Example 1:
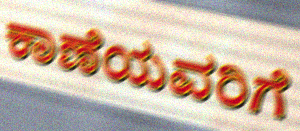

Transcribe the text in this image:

ಕಾಣೆಯವರಿಗೆ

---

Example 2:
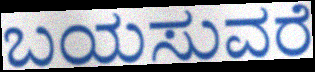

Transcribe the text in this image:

ಬಯಸುವರೆ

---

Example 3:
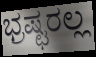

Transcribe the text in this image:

ಭ್ರಷ್ಟರಲ್ಲ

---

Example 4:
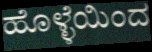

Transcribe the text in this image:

ಹೊಳ್ಳೆಯಿಂದ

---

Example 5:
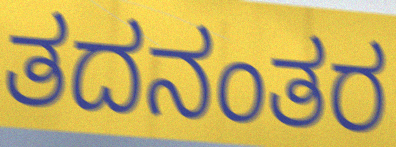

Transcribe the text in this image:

ತದನಂತರ